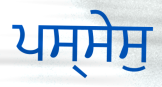
ਪਸ੍ਸੇਸੁ